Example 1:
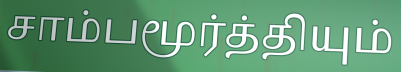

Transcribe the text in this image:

சாம்பமூர்த்தியும்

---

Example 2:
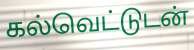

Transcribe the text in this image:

கல்வெட்டுடன்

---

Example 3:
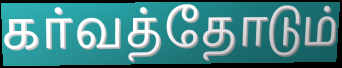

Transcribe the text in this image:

கர்வத்தோடும்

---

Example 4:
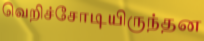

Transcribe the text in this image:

வெறிச்சோடியிருந்தன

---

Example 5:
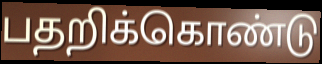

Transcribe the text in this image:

பதறிக்கொண்டு